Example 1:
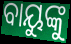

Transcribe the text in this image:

ବାୟୁଙ୍କୁ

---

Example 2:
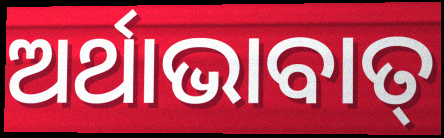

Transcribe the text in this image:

ଅର୍ଥାଭାବାତ୍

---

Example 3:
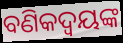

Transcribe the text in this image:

ବଣିକଦ୍ଵୟଙ୍କ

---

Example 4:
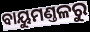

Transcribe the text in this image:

ବାୟୁମଣ୍ତଳରୁ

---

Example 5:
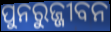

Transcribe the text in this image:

ପୁନରୁଜ୍ଜୀବନ